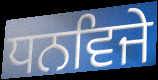
ਧਨਵਿਜੇ